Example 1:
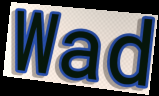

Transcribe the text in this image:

Wad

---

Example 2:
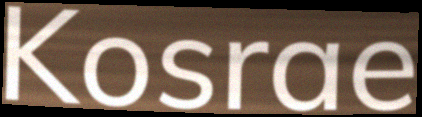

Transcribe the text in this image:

Kosrae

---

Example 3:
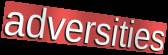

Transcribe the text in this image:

adversities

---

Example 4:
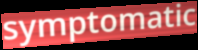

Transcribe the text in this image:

symptomatic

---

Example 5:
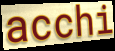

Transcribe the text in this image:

acchi